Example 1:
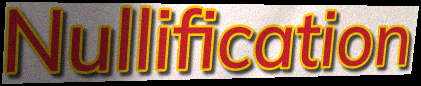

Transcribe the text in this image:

Nullification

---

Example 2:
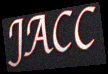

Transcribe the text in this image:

JACC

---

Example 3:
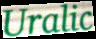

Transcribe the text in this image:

Uralic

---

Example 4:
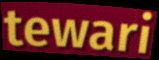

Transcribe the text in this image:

tewari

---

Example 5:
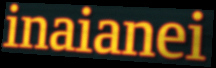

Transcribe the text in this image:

inaianei